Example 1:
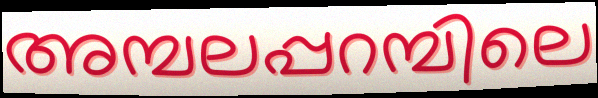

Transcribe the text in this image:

അമ്പലപ്പറമ്പിലെ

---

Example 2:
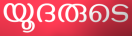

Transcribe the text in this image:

യൂദരുടെ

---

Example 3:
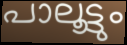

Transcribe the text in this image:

പാലൂട്ടും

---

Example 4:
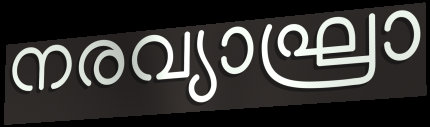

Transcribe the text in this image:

നരവ്യാഘ്രാ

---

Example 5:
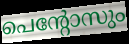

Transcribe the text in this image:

പെന്റോസും